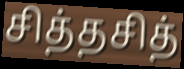
சித்தசித்